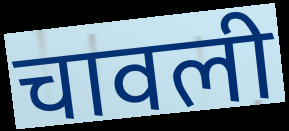
चावली